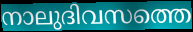
നാലുദിവസത്തെ